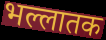
भल्लातक